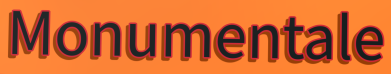
Monumentale